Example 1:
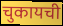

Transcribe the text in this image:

चुकायची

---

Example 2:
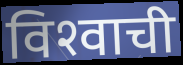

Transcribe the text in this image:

विश्वाची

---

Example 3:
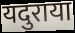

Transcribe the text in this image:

यदुराया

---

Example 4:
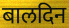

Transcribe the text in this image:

बालदिन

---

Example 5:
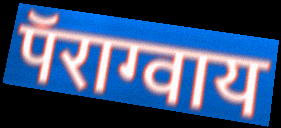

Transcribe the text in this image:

पॅराग्वाय